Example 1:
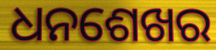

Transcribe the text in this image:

ଧନଶେଖର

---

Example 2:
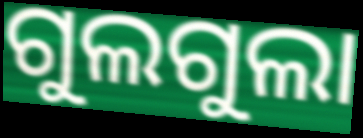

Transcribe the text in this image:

ଗୁଲଗୁଲା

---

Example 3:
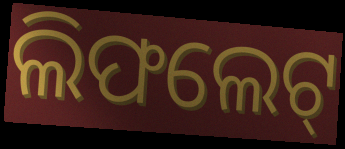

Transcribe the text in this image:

ଲିଫଲେଟ୍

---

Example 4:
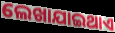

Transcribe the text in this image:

ଲେଖାଯାଇଥାଏ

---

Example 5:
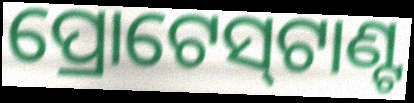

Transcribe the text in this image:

ପ୍ରୋଟେସ୍‌ଟାଣ୍ଟ